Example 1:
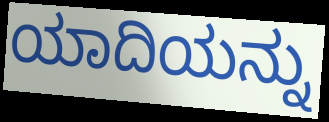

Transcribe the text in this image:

ಯಾದಿಯನ್ನು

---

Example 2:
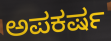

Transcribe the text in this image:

ಅಪಕರ್ಷ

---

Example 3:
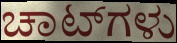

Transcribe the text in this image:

ಚಾಟ್‌ಗಳು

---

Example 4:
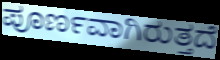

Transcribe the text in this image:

ಪೂರ್ಣವಾಗಿರುತ್ತದೆ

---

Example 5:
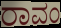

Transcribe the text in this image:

ರಾವಂ